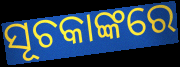
ସୂଚକାଙ୍କରେ